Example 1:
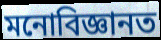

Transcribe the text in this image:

মনোবিজ্ঞানত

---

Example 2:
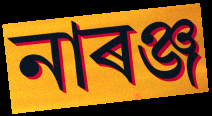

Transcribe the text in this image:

নাৰঞ্জ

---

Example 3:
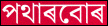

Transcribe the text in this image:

পথাৰবোৰ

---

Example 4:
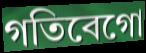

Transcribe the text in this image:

গতিবেগো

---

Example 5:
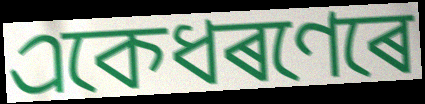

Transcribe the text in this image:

একেধৰণেৰে